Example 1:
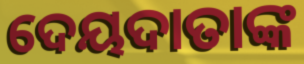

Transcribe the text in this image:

ଦେୟଦାତାଙ୍କ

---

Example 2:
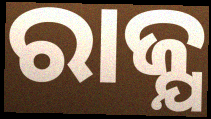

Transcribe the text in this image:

ରାଜ୍ଯ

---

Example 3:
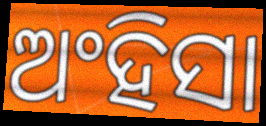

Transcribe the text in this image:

ଅଂହିସା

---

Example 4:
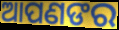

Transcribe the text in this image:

ଆପଣଙର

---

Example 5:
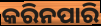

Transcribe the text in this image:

କରିନପାରି